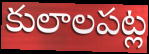
కులాలపట్ల